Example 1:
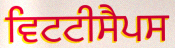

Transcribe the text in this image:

ਵਿਟਟੀਸੈਪਸ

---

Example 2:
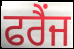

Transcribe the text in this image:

ਫਰੈਂਜ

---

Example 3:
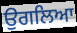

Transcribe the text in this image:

ਉਗਲਿਆ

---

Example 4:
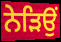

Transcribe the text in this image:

ਨੇੜਿਉਂ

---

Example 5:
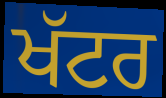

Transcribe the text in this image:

ਖੱਟਰ